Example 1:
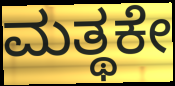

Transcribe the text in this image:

ಮತ್ಥಕೇ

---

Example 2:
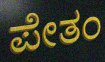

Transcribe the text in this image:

ಪೇತಂ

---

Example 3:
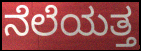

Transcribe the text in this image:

ನೆಲೆಯತ್ತ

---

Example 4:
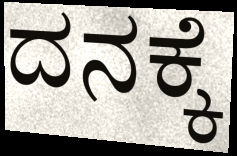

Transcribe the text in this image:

ದನಕ್ಕೆ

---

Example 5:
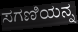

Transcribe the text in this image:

ಸಗಣಿಯನ್ನ